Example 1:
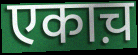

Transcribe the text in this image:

एकाच़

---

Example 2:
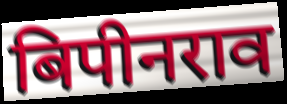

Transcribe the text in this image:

बिपीनराव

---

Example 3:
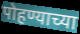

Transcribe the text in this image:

पोहण्याच्या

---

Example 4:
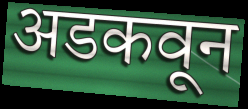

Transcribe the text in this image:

अडकवून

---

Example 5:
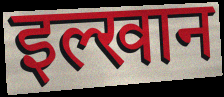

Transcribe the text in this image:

इल्खान